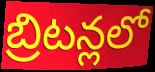
బ్రిటన్లలో